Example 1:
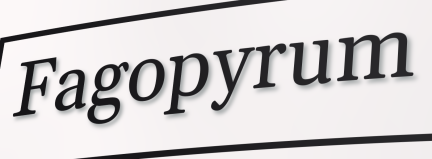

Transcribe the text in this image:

Fagopyrum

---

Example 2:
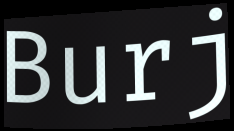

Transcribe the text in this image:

Burj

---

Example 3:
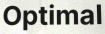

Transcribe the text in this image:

Optimal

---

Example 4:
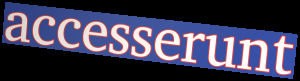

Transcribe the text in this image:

accesserunt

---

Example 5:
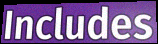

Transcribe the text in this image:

Includes